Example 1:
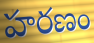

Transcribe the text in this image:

హరణం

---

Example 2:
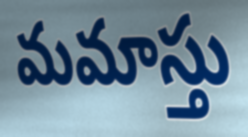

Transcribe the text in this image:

మమాస్తు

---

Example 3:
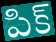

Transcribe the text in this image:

పిక్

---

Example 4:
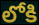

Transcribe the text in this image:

లోకి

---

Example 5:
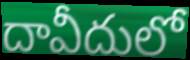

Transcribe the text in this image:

దావీదులో